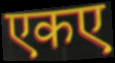
एकए